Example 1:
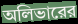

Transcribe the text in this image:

অলিভারের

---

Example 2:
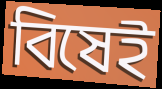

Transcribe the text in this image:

বিষেই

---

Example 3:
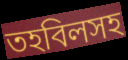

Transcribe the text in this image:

তহবিলসহ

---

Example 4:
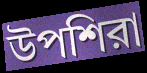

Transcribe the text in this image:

উপশিরা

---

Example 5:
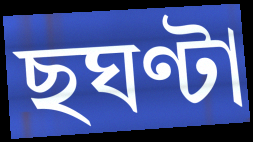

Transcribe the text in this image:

ছঘণ্টা